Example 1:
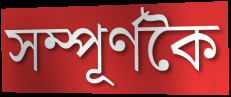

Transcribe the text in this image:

সম্পূৰ্ণকৈ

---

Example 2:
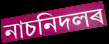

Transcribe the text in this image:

নাচনিদলৰ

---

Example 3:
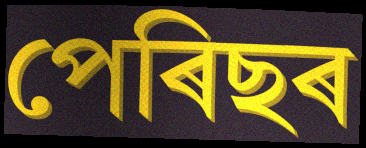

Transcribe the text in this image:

পেৰিছৰ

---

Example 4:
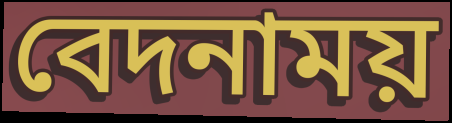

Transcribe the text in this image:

বেদনাময়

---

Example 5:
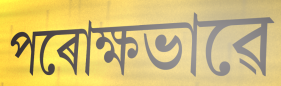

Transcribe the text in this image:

পৰোক্ষভাৱে